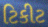
ટિકીટ